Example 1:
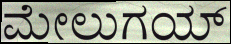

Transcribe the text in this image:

ಮೇಲುಗಯ್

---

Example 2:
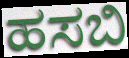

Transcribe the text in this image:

ಹಸಬಿ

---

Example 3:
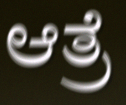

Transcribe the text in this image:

ಆತ್ರೆ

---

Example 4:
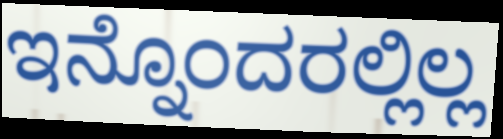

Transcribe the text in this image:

ಇನ್ನೊಂದರಲ್ಲಿಲ್ಲ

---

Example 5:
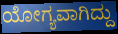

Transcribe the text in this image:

ಯೋಗ್ಯವಾಗಿದ್ದು